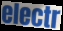
electr